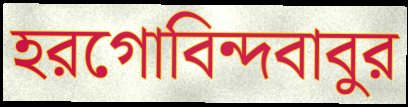
হরগোবিন্দবাবুর